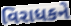
વિરાધકને